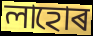
লাহোৰ